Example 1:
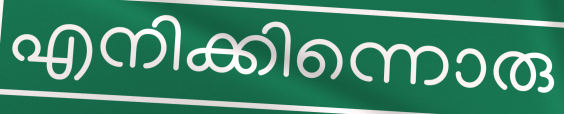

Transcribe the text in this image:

എനിക്കിന്നൊരു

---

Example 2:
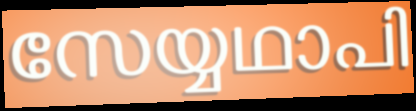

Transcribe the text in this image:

സേയ്യഥാപി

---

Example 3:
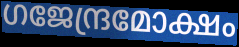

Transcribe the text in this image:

ഗജേന്ദ്രമോക്ഷം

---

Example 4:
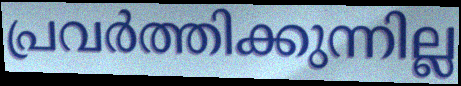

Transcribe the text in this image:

പ്രവർത്തിക്കുന്നില്ല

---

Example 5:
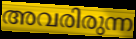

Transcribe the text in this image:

അവരിരുന്ന